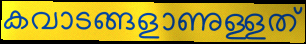
കവാടങ്ങളാണുള്ളത്